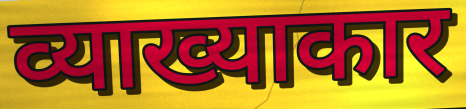
व्याख्याकार